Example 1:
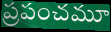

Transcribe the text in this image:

ప్రపంచమూ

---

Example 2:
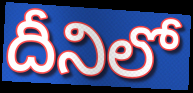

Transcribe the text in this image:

దీనిలో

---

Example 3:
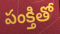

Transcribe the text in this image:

పంక్తితో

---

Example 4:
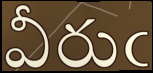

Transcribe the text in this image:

వీరుఁ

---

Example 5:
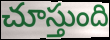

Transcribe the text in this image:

చూస్తుంది